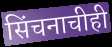
सिंचनाचीही